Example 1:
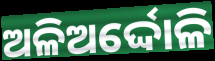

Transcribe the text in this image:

ଅଳିଅର୍ଦ୍ଦୋଳି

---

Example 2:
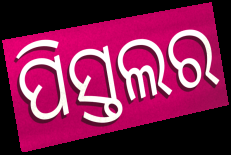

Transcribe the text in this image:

ପିସ୍ତଲର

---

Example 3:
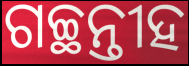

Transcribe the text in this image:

ଗଚ୍ଛନ୍ତୀହ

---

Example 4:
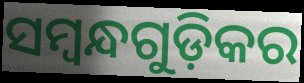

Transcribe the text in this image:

ସମ୍ବନ୍ଧଗୁଡ଼ିକର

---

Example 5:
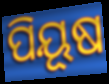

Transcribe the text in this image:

ପିୟୂଷ